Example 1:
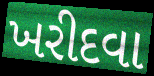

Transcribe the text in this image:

ખરીદવા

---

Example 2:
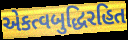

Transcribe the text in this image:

એકત્વબુદ્ધિરહિત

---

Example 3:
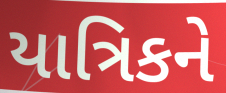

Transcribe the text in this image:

યાત્રિકને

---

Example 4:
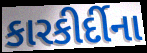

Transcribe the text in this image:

કારકીર્દીના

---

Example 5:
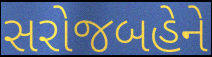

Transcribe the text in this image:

સરોજબહેને